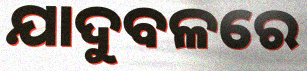
ଯାଦୁବଳରେ